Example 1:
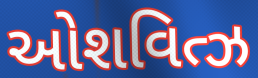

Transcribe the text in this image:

ઓશવિત્ઝ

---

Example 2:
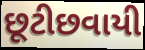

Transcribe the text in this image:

છૂટીછવાયી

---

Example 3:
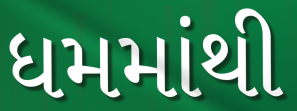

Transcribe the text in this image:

ધમમાંથી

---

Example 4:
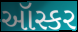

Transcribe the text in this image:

ઑસ્કર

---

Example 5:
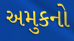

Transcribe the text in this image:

અમુકનો